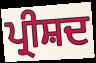
ਪ੍ਰ੍ਰੀਸ਼ਦ